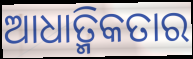
ଆଧାତ୍ମିକତାର